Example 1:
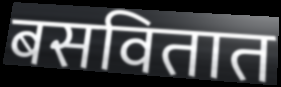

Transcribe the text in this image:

बसवितात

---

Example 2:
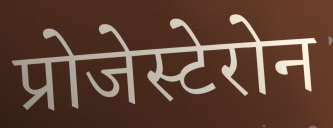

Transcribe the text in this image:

प्रोजेस्टेरोन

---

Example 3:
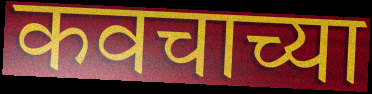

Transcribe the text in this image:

कवचाच्या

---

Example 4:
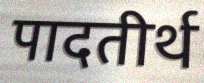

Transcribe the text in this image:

पादतीर्थ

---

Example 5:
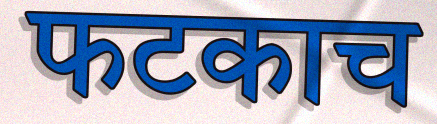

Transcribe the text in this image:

फटकाच